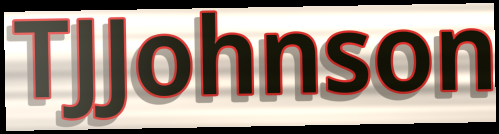
TJJohnson